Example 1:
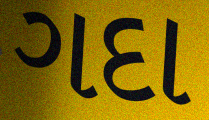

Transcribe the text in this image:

ગદા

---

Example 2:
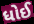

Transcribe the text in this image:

ધોઈ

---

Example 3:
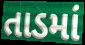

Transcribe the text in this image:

તાડમાં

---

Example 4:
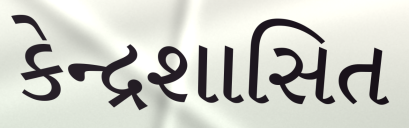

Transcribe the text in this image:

કેન્દ્રશાસિત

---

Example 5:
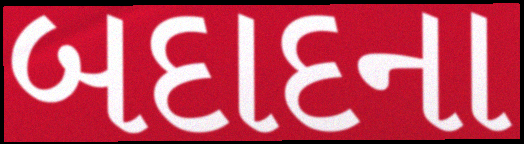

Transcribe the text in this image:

બદાદના